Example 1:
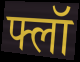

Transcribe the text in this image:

फ्लॉ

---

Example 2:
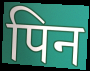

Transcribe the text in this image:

पिन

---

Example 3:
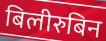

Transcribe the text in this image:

बिलीरुबिन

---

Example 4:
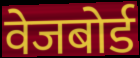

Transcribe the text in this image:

वेजबोर्ड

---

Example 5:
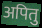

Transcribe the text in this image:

अपितु